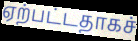
ஏற்பட்டதாகச்